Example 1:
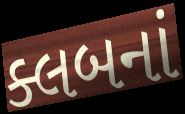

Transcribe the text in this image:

ક્લબનાં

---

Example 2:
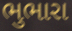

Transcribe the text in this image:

ભુભારા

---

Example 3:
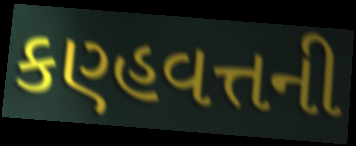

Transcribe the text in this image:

કણ્હવત્તની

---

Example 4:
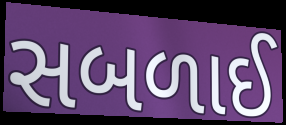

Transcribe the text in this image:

સબળાઈ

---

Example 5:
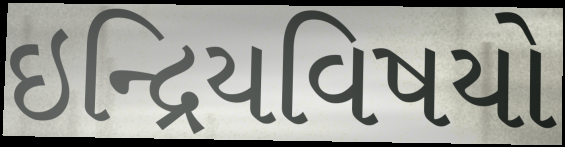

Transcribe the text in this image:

ઇન્દ્રિયવિષયો